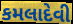
કમલાદેવી